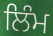
ਲਿੰਮ